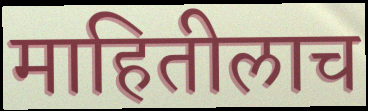
माहितीलाच